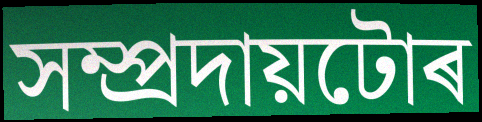
সম্প্ৰদায়টোৰ